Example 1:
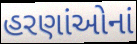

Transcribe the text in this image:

હરણાંઓનાં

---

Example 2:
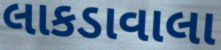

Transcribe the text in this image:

લાકડાવાલા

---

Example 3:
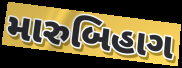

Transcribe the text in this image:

મારુબિહાગ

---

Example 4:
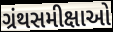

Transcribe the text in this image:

ગ્રંથસમીક્ષાઓ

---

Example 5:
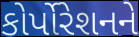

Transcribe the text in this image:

કોર્પોરેશનને